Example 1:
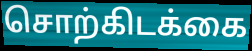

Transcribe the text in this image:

சொற்கிடக்கை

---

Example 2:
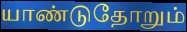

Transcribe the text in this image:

யாண்டுதோறும்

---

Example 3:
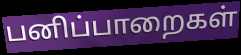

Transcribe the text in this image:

பனிப்பாறைகள்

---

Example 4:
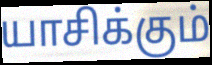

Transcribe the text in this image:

யாசிக்கும்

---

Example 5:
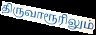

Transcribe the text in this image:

திருவாரூரிலும்